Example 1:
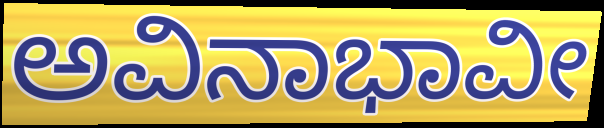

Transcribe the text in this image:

ಅವಿನಾಭಾವೀ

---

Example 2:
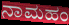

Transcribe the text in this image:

ನಾಮಹಂ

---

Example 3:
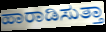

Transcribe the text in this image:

ಹಾರಾಡಿಸುತ್ತಾ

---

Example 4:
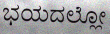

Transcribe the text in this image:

ಭಯದಲ್ಲೋ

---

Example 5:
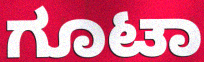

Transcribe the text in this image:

ಗೂಟಾ